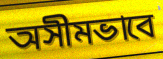
অসীমভাবে